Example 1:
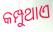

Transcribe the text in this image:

କମ୍ପୁଥାଏ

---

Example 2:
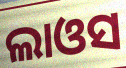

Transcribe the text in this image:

ଲାଓସ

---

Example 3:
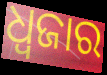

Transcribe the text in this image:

ଧ୍ୱଜାର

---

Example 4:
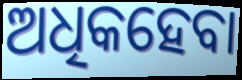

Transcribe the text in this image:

ଅଧିକହେବା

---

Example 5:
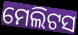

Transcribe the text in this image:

ମେଲିଟସ